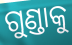
ଗୁଣ୍ଡାକୁ